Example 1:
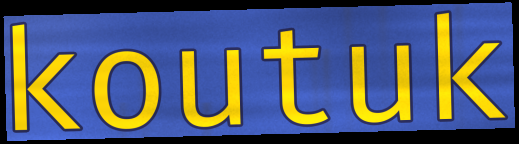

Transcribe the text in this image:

koutuk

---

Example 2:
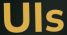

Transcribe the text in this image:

UIs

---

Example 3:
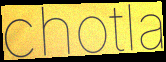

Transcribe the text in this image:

chotla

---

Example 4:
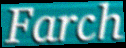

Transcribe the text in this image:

Farch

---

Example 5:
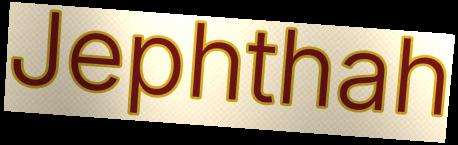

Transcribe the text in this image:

Jephthah